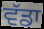
ਵੱਡਾ